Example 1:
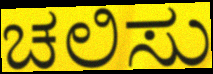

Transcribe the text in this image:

ಚಲಿಸು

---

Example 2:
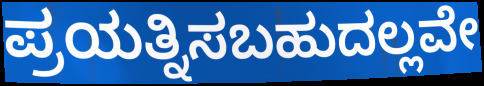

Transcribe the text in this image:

ಪ್ರಯತ್ನಿಸಬಹುದಲ್ಲವೇ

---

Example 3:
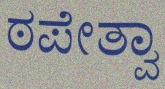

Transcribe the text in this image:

ಠಪೇತ್ವಾ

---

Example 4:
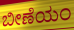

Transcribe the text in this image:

ಬೀಣೆಯಂ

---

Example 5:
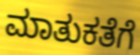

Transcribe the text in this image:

ಮಾತುಕತೆಗೆ